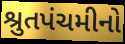
શ્રુતપંચમીનો